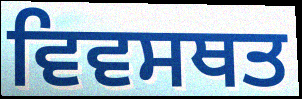
ਵਿਵਸਥਤ